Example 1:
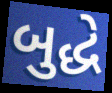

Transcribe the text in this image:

બુદ્ધે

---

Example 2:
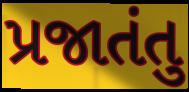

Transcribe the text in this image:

પ્રજાતંતુ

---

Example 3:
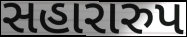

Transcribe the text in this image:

સહારારુપ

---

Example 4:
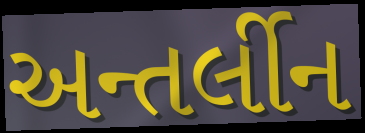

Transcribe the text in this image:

અન્તર્લીન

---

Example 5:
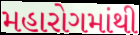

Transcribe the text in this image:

મહારોગમાંથી